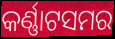
କର୍ଣ୍ଣାଟସମର